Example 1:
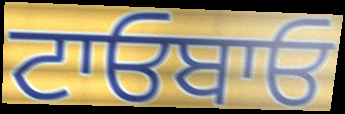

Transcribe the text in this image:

ਟਾਓਬਾਓ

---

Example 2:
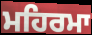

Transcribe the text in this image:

ਮਹਿਰਮਾ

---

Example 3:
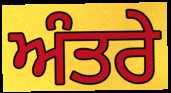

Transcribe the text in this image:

ਅੰਤਰੇ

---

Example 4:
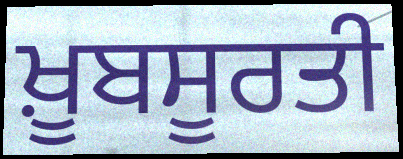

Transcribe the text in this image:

ਖ਼ੂਬਸੂਰਤੀ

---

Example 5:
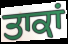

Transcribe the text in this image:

ਤਾਕਾਂ